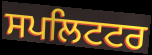
ਸਪਲਿਟਟਰ